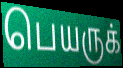
பெயருக்